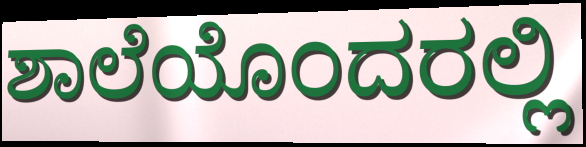
ಶಾಲೆಯೊಂದರಲ್ಲಿ